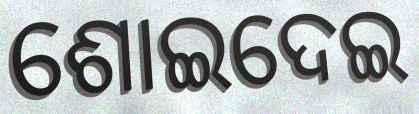
ଶୋଇଦେଇ